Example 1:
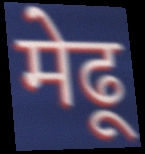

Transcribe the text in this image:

मेढू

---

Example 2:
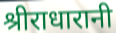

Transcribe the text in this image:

श्रीराधारानी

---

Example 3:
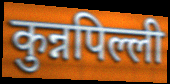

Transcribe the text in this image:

कुन्नपिल्ली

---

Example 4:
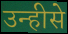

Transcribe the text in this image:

उन्हीसे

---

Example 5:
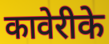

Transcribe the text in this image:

कावेरीके